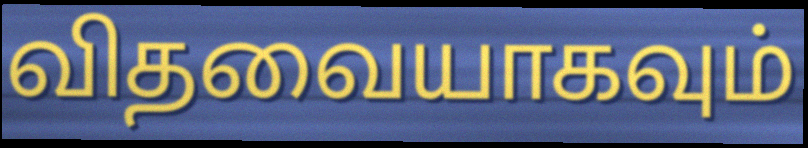
விதவையாகவும்